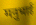
मनुभाई